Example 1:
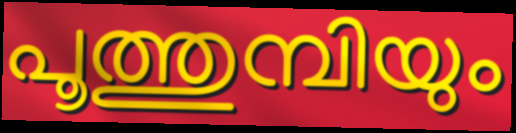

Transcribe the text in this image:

പൂത്തുമ്പിയും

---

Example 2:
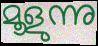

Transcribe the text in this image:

മൂളുന്നു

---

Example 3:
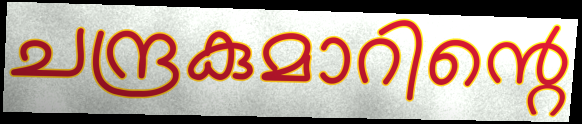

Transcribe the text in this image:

ചന്ദ്രകുമാറിന്റെ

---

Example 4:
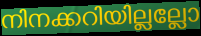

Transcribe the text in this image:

നിനക്കറിയില്ലല്ലോ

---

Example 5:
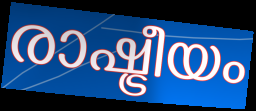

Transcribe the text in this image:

രാഷ്ട്രീയം